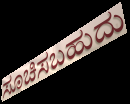
ಸೂಚಿಸಬಹುದು